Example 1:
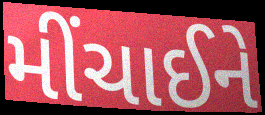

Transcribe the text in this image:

મીંચાઈને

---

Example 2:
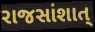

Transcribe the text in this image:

રાજસાંશાત્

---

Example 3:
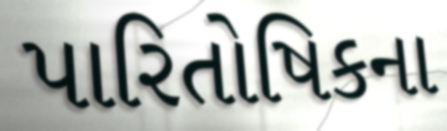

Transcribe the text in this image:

પારિતોષિકના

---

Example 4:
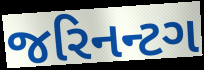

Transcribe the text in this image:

જરિનન્ટગ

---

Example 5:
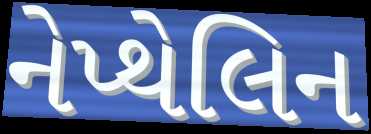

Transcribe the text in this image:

નેપ્થેલિન